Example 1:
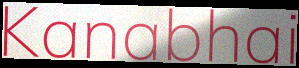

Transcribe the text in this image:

Kanabhai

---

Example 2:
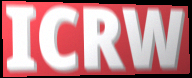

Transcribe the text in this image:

ICRW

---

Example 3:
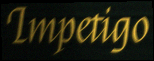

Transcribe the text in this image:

Impetigo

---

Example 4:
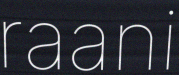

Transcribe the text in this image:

raani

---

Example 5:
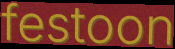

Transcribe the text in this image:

festoon